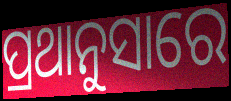
ପ୍ରଥାନୁସାରେ